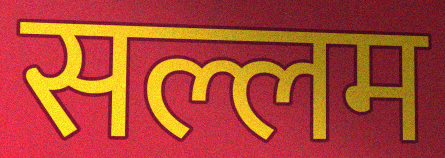
सल्‍लम